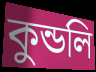
কুন্ডলি